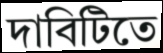
দাবিটিতে